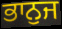
ਭਾਨੁਜ